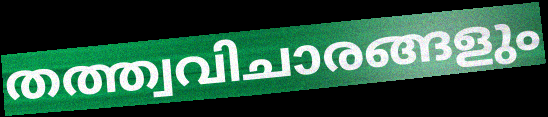
തത്ത്വവിചാരങ്ങളും